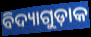
ବିଦ୍ୟାଗୁଡ଼ାକ